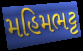
મહિમભટ્ટ